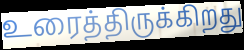
உரைத்திருக்கிறது